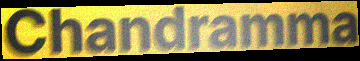
Chandramma